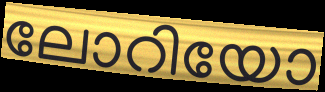
ലോറിയോ